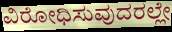
ವಿರೋಧಿಸುವುದರಲ್ಲೇ